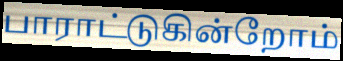
பாராட்டுகின்றோம்